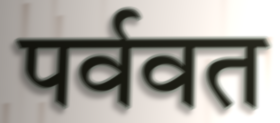
पर्ववत